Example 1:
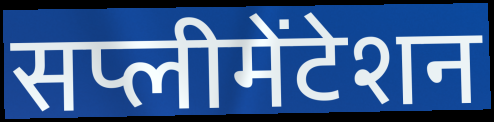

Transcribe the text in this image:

सप्लीमेंटेशन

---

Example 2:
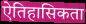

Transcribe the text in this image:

ऐतिहासिकता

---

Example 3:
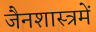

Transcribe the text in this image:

जैनशास्त्रमें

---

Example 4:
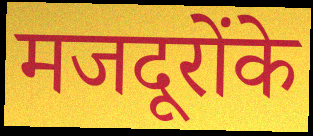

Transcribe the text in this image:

मजदूरोंके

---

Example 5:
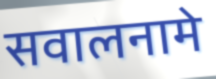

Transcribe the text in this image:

सवालनामे